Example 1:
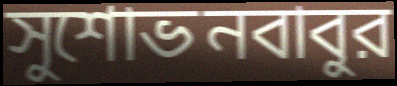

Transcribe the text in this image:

সুশোভনবাবুর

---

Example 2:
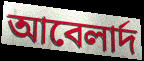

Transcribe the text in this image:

আবেলার্দ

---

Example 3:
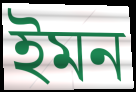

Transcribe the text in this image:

ইমন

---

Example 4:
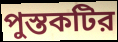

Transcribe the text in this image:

পুস্তকটির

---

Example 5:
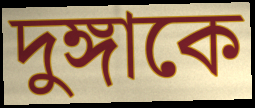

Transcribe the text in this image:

দুঙ্গাকে